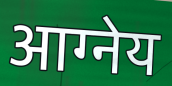
आग्नेय